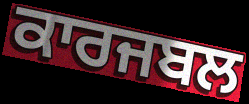
ਕਾਰਜਬਲ